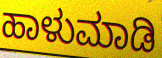
ಹಾಳುಮಾಡಿ